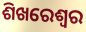
ଶିଖରେଶ୍ୱର